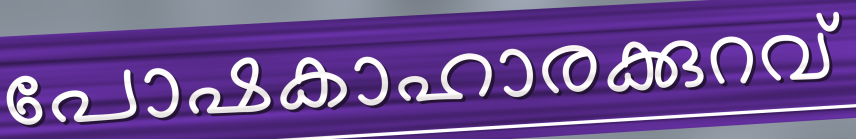
പോഷകാഹാരക്കുറവ്